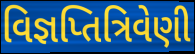
વિજ્ઞપ્તિત્રિવેણી